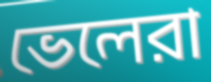
ভেলেরা